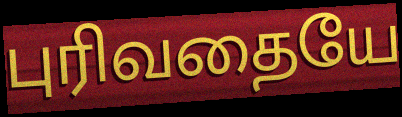
புரிவதையே